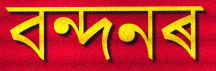
বন্দনৰ